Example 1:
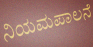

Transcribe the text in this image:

ನಿಯಮಪಾಲನೆ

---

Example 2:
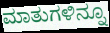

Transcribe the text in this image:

ಮಾತುಗಳಿನ್ನೂ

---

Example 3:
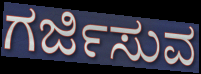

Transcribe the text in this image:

ಗರ್ಜಿಸುವ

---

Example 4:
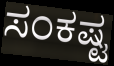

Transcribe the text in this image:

ಸಂಕಷ್ಟ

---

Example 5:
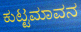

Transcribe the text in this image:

ಕುಟ್ಟಮಾವನ